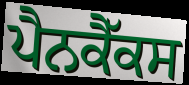
ਪੈਨਕੈੱਕਸ